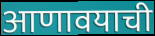
आणावयाची